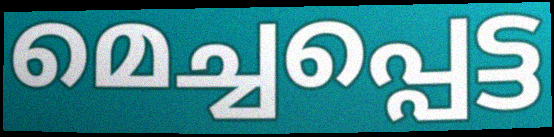
മെച്ചപ്പെട്ട